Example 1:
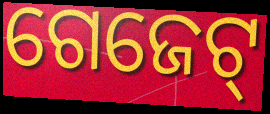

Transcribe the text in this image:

ଗେଜେଟ୍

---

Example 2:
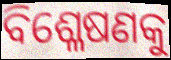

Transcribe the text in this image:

ବିଶ୍ଳେଷଣକୁ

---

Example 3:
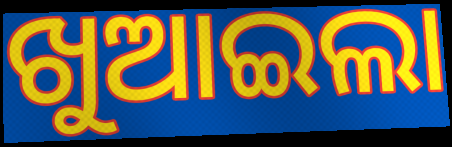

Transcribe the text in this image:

ଖୁଆଇଲା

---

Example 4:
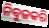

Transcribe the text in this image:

ନିବୁଜକରି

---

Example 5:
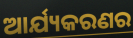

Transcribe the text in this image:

ଆର୍ଯ୍ୟକରଣର